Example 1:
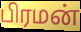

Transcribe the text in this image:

பிரமன்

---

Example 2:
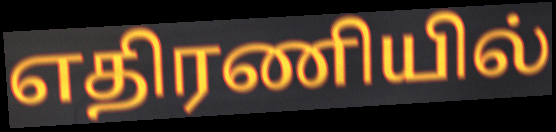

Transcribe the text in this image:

எதிரணியில்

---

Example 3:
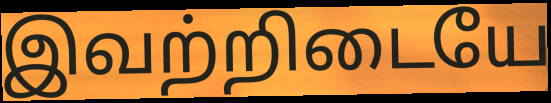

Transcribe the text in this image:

இவற்றிடையே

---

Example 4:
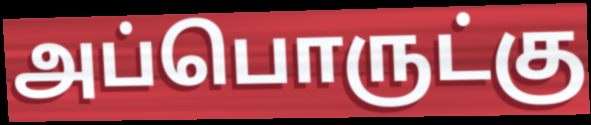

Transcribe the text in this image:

அப்பொருட்கு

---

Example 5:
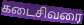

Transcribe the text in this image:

கடைசிவரை